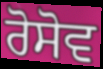
ਰੋਸੋਵ